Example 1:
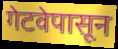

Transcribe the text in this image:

गेटवेपासून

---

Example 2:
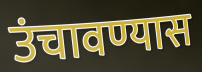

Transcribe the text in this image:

उंचावण्यास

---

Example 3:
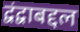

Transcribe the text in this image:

द्वंद्वाबद्दल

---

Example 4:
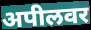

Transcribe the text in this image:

अपीलवर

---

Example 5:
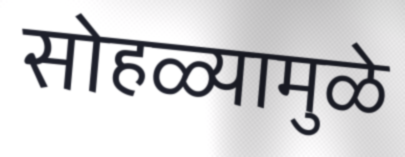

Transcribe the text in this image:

सोहळ्यामुळे